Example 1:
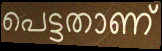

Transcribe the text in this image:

പെട്ടതാണ്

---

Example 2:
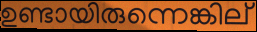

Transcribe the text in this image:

ഉണ്ടായിരുന്നെങ്കില്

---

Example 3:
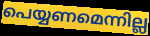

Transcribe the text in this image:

പെയ്യണമെന്നില്ല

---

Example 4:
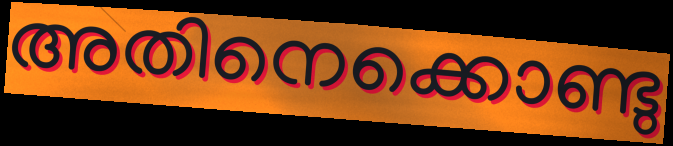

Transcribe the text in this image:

അതിനെക്കൊണ്ടു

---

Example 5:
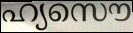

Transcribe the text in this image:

ഹ്യസൌ